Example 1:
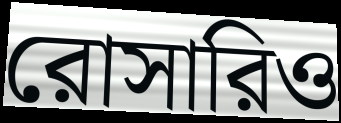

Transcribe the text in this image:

রোসারিও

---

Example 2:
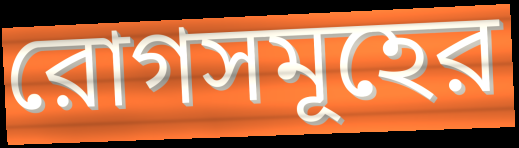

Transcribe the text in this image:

রোগসমূহের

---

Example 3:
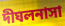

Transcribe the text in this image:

দীঘলনাসা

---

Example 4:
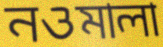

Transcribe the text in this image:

নওমালা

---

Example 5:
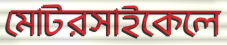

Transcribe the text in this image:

মোটরসাইকেলে